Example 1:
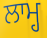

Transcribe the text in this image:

ਲਾਮ੍ਹ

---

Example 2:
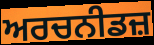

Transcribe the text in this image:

ਅਰਚਨੀਡਜ਼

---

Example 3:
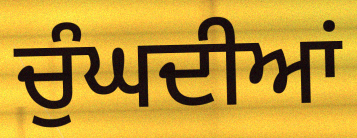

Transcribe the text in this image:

ਚੁੰਘਦੀਆਂ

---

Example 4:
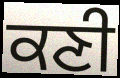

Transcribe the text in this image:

ਕਣੀ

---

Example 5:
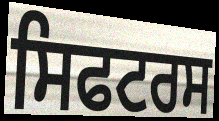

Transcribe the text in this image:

ਸਿਫਟਰਸ